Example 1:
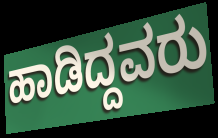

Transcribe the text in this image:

ಹಾಡಿದ್ದವರು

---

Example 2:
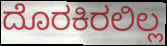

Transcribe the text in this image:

ದೊರಕಿರಲಿಲ್ಲ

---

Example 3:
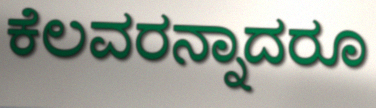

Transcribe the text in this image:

ಕೆಲವರನ್ನಾದರೂ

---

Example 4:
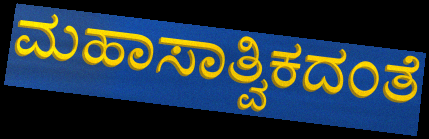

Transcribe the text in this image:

ಮಹಾಸಾತ್ವಿಕದಂತೆ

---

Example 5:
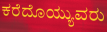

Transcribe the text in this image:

ಕರೆದೊಯ್ಯುವರು